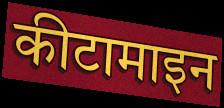
कीटामाइन